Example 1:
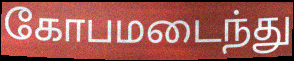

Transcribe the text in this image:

கோபமடைந்து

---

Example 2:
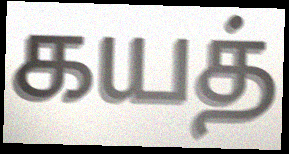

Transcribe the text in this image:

கயத்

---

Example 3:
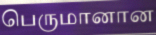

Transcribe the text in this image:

பெருமானான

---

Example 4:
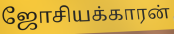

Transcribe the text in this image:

ஜோசியக்காரன்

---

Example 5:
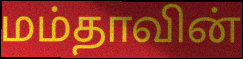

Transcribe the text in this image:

மம்தாவின்